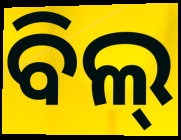
ବିଲ୍